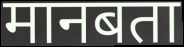
मानबता